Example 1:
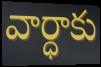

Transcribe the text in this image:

వార్ధాకు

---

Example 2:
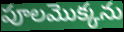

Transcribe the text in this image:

పూలమొక్కను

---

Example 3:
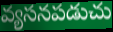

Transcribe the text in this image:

వ్యసనపడుచు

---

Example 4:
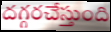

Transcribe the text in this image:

దగ్గరచేస్తుంది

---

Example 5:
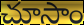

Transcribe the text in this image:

చూసాం